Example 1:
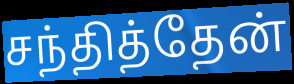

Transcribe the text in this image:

சந்தித்தேன்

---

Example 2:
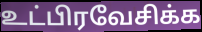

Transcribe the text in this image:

உட்பிரவேசிக்க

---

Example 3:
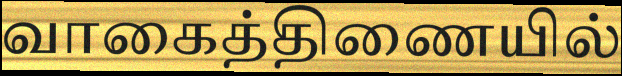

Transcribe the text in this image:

வாகைத்திணையில்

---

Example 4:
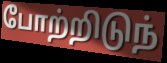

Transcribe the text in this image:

போற்றிடுந்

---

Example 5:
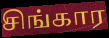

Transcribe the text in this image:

சிங்கார